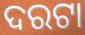
ଦରଟା